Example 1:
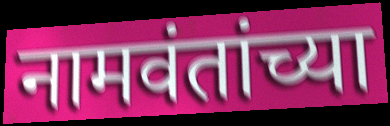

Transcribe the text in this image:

नामवंतांच्या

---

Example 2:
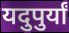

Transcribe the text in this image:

यदुपुर्यां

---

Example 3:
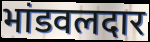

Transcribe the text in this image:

भांडवलदार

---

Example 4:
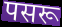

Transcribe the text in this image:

पसरू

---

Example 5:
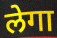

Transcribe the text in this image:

लेगा